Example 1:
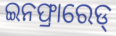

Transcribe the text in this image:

ଇନଫ୍ରାରେଡ୍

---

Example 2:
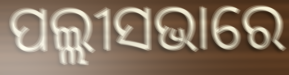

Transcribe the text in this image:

ପଲ୍ଲୀସଭାରେ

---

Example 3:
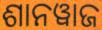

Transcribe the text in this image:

ଶାନୱାଜ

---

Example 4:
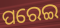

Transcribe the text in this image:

ପରେଇ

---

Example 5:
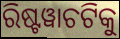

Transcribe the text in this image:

ରିଷ୍ଟୱାଚଟିକୁ